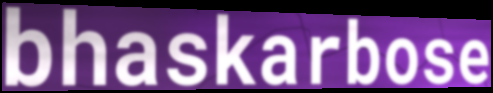
bhaskarbose